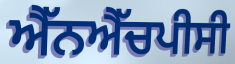
ਐੱਨਐੱਚਪੀਸੀ